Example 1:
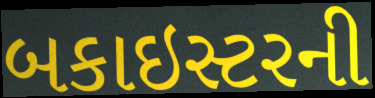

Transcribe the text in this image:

બકાઇસ્ટરની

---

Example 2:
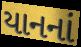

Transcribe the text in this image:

યાનનાં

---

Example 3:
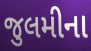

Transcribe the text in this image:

જુલમીના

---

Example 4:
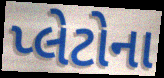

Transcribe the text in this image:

પ્લેટોના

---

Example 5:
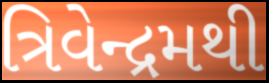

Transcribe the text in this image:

ત્રિવેન્દ્રમથી